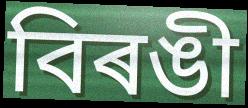
বিৰঙী